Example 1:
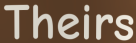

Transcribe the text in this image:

Theirs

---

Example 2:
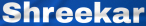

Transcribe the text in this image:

Shreekar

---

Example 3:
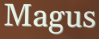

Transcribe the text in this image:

Magus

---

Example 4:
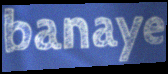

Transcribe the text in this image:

banaye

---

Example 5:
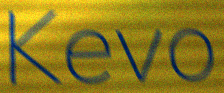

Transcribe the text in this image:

Kevo